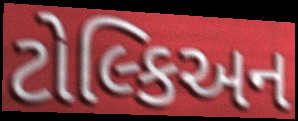
ટોલ્કિઅન